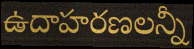
ఉదాహరణలన్నీ